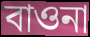
বাওনা